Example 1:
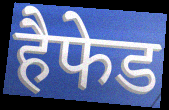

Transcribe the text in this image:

हैफेड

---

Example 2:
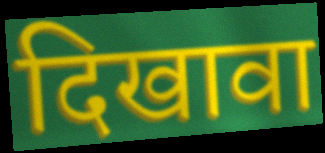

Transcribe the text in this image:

दिखावा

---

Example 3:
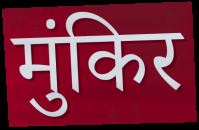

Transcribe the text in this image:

मुंकिर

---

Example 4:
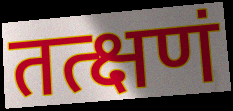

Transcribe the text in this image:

तत्क्षणं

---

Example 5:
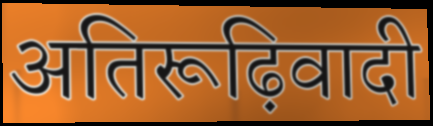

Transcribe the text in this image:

अतिरूढ़िवादी